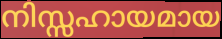
നിസ്സഹായമായ